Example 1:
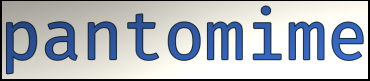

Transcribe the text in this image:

pantomime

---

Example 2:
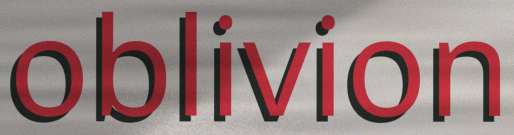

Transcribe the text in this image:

oblivion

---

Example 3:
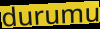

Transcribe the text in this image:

durumu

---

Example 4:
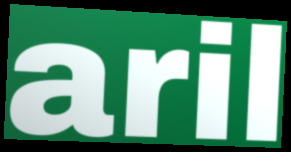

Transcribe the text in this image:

aril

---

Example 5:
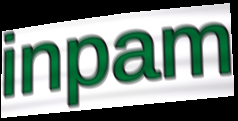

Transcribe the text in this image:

inpam